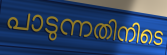
പാടുന്നതിനിടെ